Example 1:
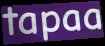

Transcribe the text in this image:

tapaa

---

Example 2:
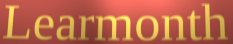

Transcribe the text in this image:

Learmonth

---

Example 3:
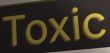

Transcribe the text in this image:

Toxic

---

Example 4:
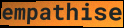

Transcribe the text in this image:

empathise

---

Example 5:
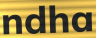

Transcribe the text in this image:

ndha